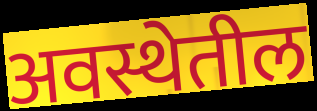
अवस्थेतील